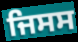
ਜਿਸਸ